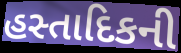
હસ્તાદિકની